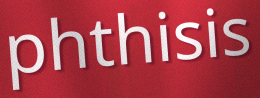
phthisis